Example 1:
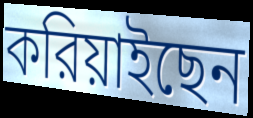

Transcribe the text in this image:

করিয়াইছেন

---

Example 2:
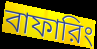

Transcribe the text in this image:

বাফারিং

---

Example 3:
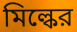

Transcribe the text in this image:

মিল্কের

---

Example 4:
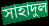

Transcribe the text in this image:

সাহাদুল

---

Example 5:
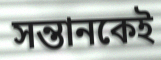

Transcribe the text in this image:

সন্তানকেই